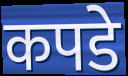
कपडे